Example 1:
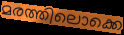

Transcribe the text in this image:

മരത്തിലൊക്കെ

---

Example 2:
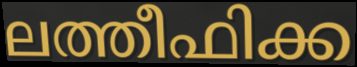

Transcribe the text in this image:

ലത്തീഫിക്ക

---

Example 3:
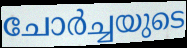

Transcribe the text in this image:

ചോർച്ചയുടെ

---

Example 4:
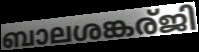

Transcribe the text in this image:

ബാലശങ്കര്ജി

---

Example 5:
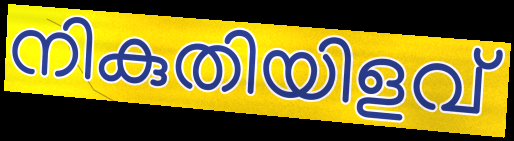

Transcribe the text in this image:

നികുതിയിളവ്